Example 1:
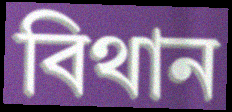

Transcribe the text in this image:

বিথান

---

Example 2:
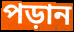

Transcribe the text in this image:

পড়ান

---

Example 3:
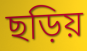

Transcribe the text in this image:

ছড়িয়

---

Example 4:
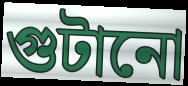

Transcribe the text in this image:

গুটানো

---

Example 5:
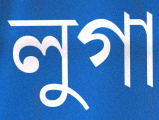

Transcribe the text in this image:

লুগা